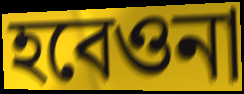
হবেওনা